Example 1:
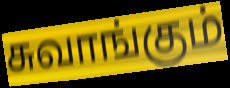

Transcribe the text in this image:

சுவாங்கும்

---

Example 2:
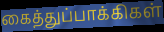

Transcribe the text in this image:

கைத்துப்பாக்கிகள்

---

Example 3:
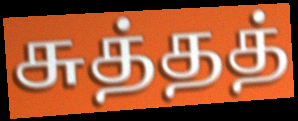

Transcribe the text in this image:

சுத்தத்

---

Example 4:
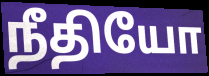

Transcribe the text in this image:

நீதியோ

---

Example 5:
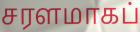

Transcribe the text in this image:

சரளமாகப்